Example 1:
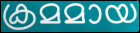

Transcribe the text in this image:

ക്രമമായ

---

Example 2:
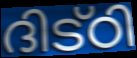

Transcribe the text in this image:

ദിട്ഠി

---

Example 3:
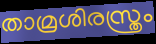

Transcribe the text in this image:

താമ്രശിരസ്ത്രം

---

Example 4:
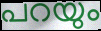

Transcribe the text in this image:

പറയും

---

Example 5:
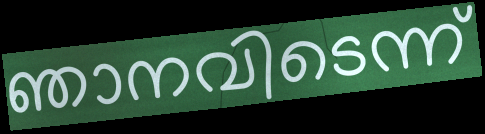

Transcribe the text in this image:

ഞാനവിടെന്ന്